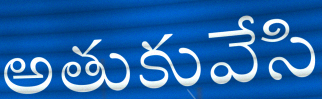
అతుకువేసి